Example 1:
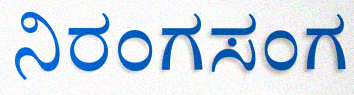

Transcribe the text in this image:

ನಿರಂಗಸಂಗ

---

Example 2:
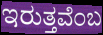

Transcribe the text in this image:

ಇರುತ್ತವೆಂಬ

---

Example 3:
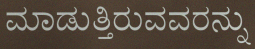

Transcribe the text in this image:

ಮಾಡುತ್ತಿರುವವರನ್ನು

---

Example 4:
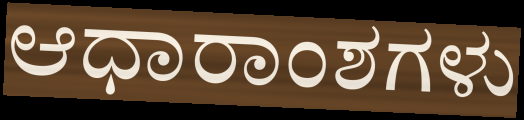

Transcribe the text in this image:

ಆಧಾರಾಂಶಗಳು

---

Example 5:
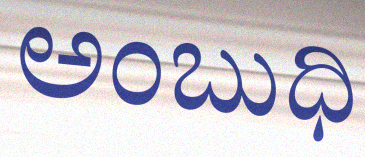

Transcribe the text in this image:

ಅಂಬುಧಿ